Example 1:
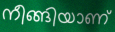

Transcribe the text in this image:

നീങ്ങിയാണ്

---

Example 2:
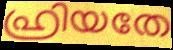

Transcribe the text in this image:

ഹ്രിയതേ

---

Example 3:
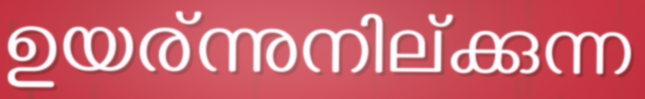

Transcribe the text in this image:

ഉയര്ന്നുനില്ക്കുന്ന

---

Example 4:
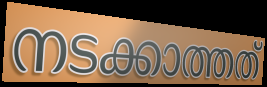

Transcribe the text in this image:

നടക്കാത്തത്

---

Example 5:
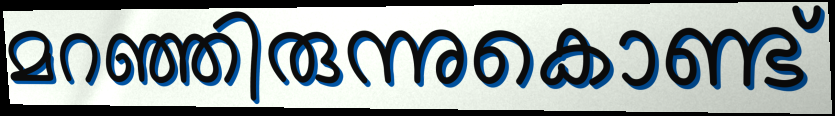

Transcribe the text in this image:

മറഞ്ഞിരുന്നുകൊണ്ട്